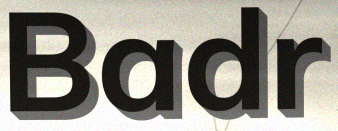
Badr